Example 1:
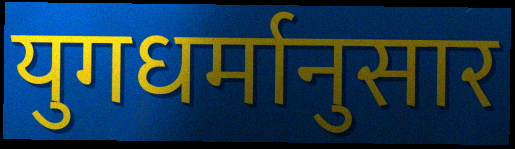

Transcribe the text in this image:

युगधर्मानुसार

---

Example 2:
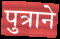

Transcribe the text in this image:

पुत्राने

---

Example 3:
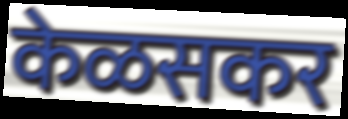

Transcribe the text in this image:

केळसकर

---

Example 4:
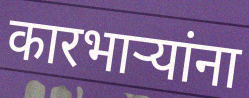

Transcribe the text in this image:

कारभाऱ्यांना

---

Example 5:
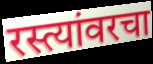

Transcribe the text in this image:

रस्त्यांवरचा